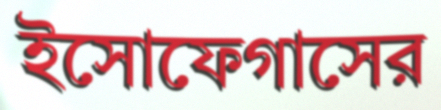
ইসোফেগাসের